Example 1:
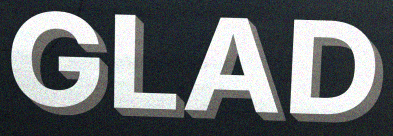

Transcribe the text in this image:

GLAD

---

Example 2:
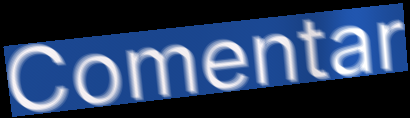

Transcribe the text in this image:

Comentar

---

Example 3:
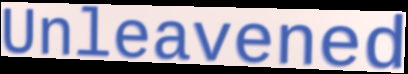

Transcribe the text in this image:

Unleavened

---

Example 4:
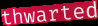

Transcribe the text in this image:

thwarted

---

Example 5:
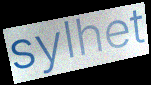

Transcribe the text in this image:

sylhet